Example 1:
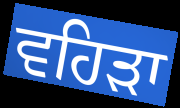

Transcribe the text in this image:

ਵਹਿੜਾ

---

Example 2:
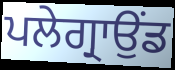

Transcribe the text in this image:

ਪਲੇਗ੍ਰਾਉਂਡ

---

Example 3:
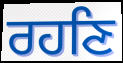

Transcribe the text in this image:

ਰਹਣਿ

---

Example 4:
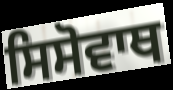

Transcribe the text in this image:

ਸਿਸੋਵਾਥ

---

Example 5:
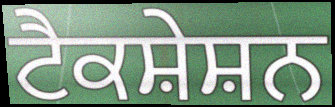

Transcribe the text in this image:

ਟੈਕਸ਼ੇਸ਼ਨ